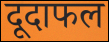
दूदाफल